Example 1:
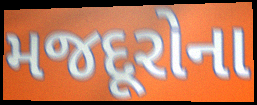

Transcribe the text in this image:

મજદૂરોના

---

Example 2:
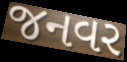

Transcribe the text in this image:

જનવર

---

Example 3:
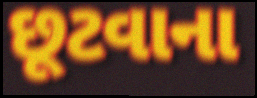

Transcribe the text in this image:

છૂટવાના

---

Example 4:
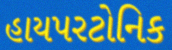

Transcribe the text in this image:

હાયપરટોનિક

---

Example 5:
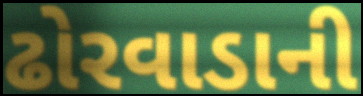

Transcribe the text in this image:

ઢોરવાડાની